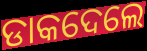
ଡାକଦେଲେ